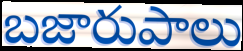
బజారుపాలు